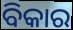
ବିକାର